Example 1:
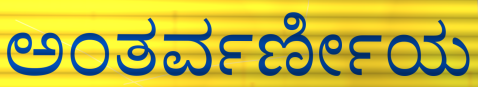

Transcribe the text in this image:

ಅಂತರ್ವರ್ಣೀಯ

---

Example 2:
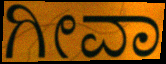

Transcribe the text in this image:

ಗೀವಾ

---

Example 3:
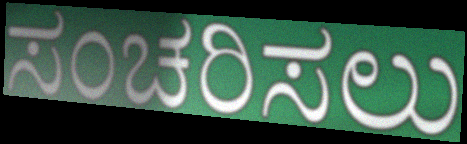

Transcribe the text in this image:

ಸಂಚರಿಸಲು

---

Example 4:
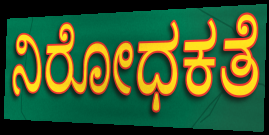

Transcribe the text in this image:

ನಿರೋಧಕತೆ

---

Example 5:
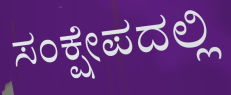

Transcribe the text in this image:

ಸಂಕ್ಷೇಪದಲ್ಲಿ